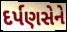
દર્પણસેને